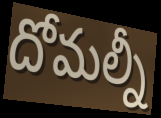
దోమల్నీ